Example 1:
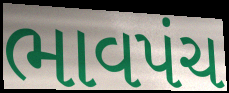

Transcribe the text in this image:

ભાવપંચ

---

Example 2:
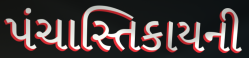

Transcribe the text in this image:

પંચાસ્તિકાયની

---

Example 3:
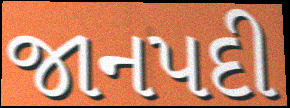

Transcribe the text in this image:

જાનપદી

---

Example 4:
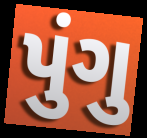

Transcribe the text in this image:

પુંગુ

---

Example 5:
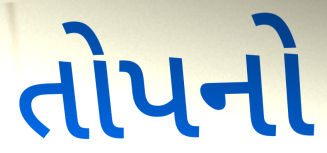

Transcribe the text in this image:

તોપનો